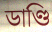
ডাণ্ডি